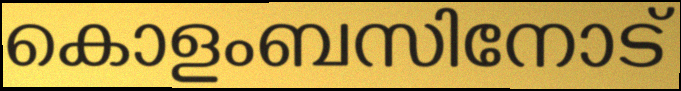
കൊളംബസിനോട്